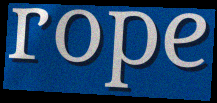
rope